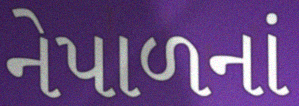
નેપાળનાં